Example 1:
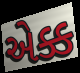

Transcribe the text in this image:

એક્ક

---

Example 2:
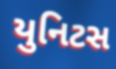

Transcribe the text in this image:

યુનિટસ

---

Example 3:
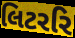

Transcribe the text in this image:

લિટરરિ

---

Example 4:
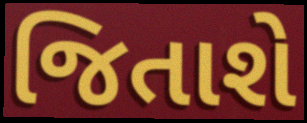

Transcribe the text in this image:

જિતાશે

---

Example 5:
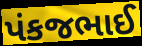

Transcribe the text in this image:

પંકજભાઈ